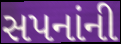
સપનાંની